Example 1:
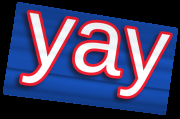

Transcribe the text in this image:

yay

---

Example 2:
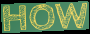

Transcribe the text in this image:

HOW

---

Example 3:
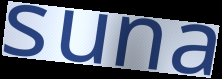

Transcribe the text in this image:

suna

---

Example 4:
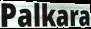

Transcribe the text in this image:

Palkara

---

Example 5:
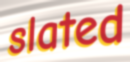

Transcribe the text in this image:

slated